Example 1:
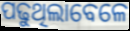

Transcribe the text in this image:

ପଢୁଥିଲାବେଳେ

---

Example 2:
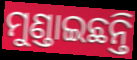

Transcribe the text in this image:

ମୁଣ୍ଡାଇଛନ୍ତି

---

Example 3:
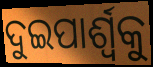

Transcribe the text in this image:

ଦୁଇପାର୍ଶ୍ବକୁ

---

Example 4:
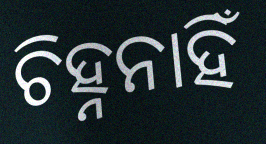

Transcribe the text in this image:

ଚିହ୍ନନାହିଁ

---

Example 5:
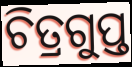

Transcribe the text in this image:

ଚିତ୍ରଗୁପ୍ତ